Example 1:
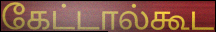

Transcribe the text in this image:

கேட்டால்கூட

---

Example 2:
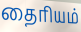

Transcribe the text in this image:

தைரியம்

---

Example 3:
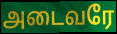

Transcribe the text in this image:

அடைவரே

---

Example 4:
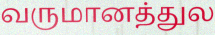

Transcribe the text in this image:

வருமானத்துல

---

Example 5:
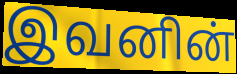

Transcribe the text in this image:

இவனின்